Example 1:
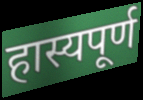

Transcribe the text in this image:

हास्यपूर्ण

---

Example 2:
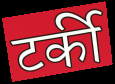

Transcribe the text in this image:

टर्की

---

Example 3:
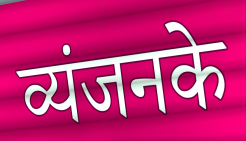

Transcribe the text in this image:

व्यंजनके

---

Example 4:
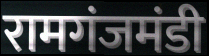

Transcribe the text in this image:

रामगंजमंडी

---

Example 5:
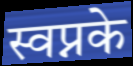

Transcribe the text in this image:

स्वप्नके